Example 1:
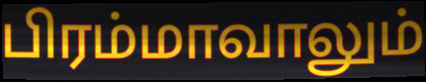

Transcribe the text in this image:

பிரம்மாவாலும்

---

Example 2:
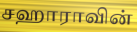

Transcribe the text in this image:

சஹாராவின்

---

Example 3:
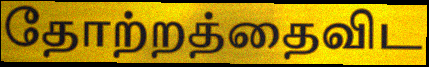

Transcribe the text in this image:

தோற்றத்தைவிட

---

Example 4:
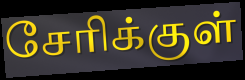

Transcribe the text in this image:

சேரிக்குள்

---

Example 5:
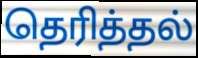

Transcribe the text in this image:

தெரித்தல்